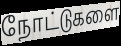
நோட்டுகளை